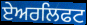
ਏਅਰਲਿਫਟ